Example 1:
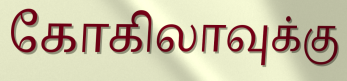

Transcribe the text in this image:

கோகிலாவுக்கு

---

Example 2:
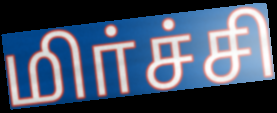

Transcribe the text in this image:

மிர்ச்சி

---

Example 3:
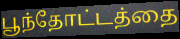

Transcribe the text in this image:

பூந்தோட்டத்தை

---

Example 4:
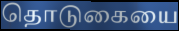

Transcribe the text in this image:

தொடுகையை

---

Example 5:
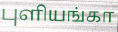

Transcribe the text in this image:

புளியங்கா